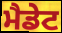
ਮੈਡੇਟ